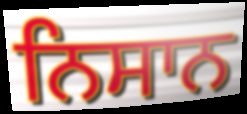
ਨਿਸਾਨ